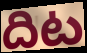
దిట